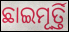
ଛାଇମୂର୍ତ୍ତି